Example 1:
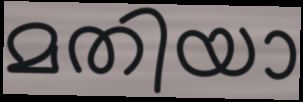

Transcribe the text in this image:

മതിയാ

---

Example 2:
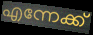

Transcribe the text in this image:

എന്നേക്ക്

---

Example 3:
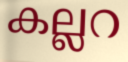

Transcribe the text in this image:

കല്ലറ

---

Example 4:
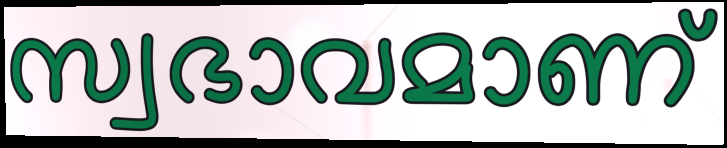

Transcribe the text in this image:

സ്വഭാവമാണ്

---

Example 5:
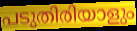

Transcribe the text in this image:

പടുതിരിയാളും